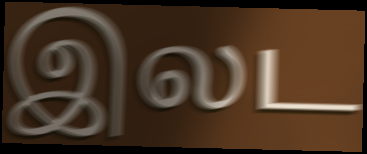
இலட